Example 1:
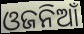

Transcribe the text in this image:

ଓଜନିଆଁ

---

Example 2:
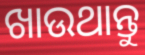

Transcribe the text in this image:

ଖାଉଥାନ୍ତୁ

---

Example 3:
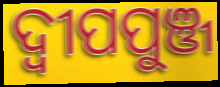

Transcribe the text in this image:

ଦ୍ୱୀପପୁଞ୍ଜ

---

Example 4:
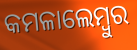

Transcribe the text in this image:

କମଳାଲେମ୍ବୁର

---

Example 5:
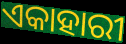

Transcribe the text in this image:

ଏକାହାରୀ